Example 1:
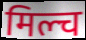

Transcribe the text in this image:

मिल्च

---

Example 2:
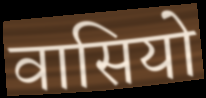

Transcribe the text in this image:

वासियो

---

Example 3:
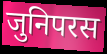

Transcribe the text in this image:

जुनिपरस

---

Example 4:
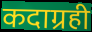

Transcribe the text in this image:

कदाग्रही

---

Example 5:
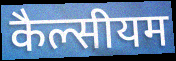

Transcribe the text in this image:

कैल्सीयम